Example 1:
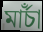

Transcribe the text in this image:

মার্চাঁ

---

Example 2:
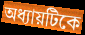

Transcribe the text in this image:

অধ্যায়টিকে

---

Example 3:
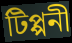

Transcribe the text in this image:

টিপ্পনী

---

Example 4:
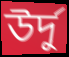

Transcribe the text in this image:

উর্দু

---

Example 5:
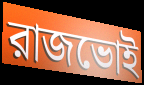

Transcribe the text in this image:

রাজভোই